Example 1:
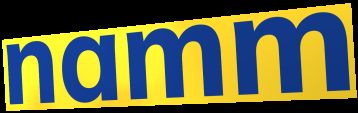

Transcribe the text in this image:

namm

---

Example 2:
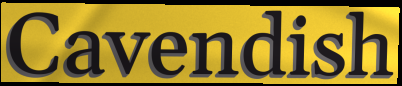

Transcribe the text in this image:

Cavendish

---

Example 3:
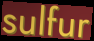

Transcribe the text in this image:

sulfur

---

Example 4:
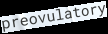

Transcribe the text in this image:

preovulatory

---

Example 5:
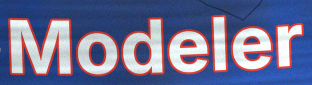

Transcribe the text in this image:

Modeler